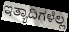
ಇತ್ಯಾದಿಗಳೆಲ್ಲ